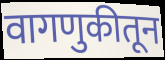
वागणुकीतून